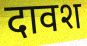
दावश